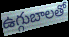
ఉగ్గుబాలతో